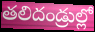
తలిదండ్రుల్లో